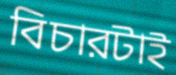
বিচারটাই